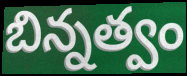
బిన్నత్వం